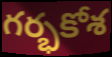
గర్భకోశ